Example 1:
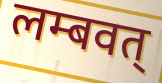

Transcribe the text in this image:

लम्बवत्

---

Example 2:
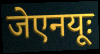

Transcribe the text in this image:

जेएनयूः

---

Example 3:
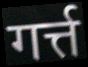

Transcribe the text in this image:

गर्त्त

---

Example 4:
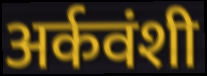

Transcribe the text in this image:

अर्कवंशी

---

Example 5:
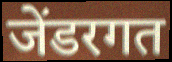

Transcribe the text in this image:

जेंडरगत